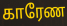
காரேண